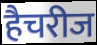
हैचरीज